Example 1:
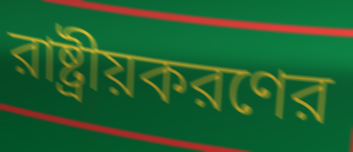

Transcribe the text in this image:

রাষ্ট্রীয়করণের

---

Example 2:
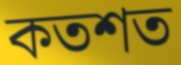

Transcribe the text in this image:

কতশত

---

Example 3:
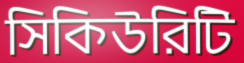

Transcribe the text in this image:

সিকিউরিটি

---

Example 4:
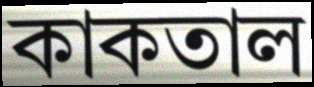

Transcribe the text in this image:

কাকতাল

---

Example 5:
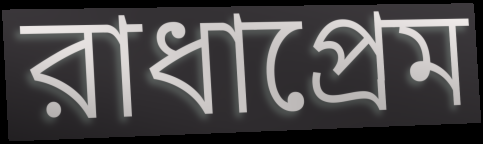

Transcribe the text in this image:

রাধাপ্রেম